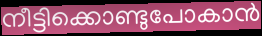
നീട്ടിക്കൊണ്ടുപോകാൻ